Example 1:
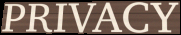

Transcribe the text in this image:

PRIVACY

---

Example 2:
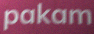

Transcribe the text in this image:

pakam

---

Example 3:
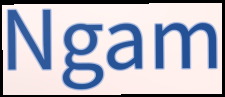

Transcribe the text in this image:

Ngam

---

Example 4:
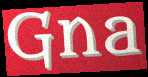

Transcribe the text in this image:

Gna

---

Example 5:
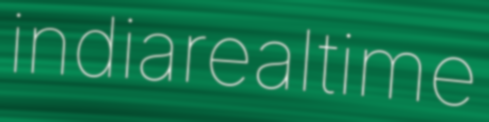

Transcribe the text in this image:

indiarealtime